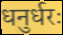
धनुर्धरः